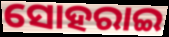
ସୋହରାଇ